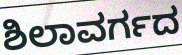
ಶಿಲಾವರ್ಗದ